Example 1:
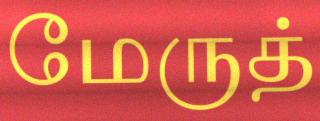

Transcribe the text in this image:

மேருத்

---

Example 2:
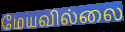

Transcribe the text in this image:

மேயவில்லை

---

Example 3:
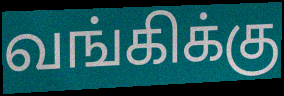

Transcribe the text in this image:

வங்கிக்கு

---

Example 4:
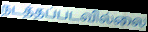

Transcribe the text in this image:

நடத்தப்படவில்லை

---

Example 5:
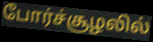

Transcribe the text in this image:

போர்ச்சூழலில்